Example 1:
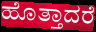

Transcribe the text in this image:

ಹೊತ್ತಾದರೆ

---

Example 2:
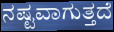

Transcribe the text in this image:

ನಷ್ಟವಾಗುತ್ತದೆ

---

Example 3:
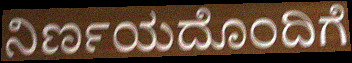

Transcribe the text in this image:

ನಿರ್ಣಯದೊಂದಿಗೆ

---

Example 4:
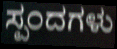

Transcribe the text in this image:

ಸ್ಪಂದಗಳು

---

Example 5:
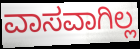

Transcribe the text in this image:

ವಾಸವಾಗಿಲ್ಲ